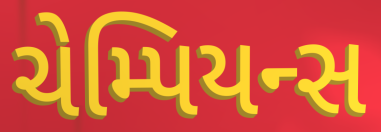
ચેમ્પિયન્સ